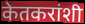
केतकरांशी